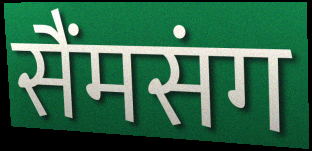
सैंमसंग